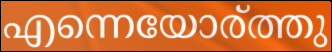
എന്നെയോര്ത്തു